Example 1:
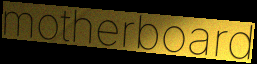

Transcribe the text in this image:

motherboard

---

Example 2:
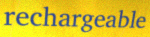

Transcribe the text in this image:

rechargeable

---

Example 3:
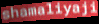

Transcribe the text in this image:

shamaliyaji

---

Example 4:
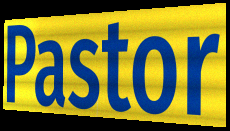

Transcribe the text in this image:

Pastor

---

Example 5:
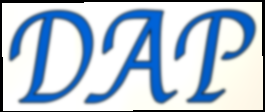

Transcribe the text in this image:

DAP